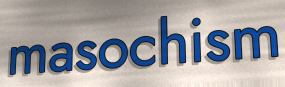
masochism